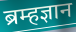
ब्रम्हज्ञान